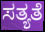
ಸತ್ಯತೆ